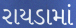
રાયડામાં